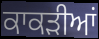
ਕਾਕੜੀਆਂ